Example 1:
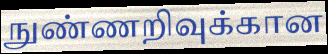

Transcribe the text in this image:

நுண்ணறிவுக்கான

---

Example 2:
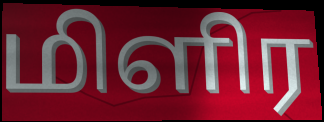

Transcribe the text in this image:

மிளிர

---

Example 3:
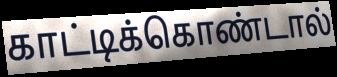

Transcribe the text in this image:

காட்டிக்கொண்டால்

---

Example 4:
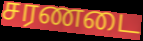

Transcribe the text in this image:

சரணடை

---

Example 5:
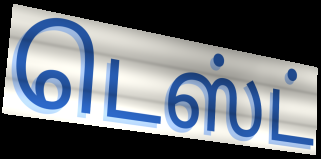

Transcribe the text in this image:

டெஸ்ட்